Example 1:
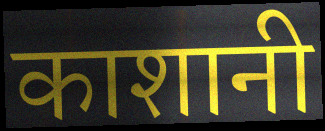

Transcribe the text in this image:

काशानी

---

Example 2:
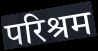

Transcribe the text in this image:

परिश्रम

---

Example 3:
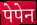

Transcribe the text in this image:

पेपेन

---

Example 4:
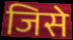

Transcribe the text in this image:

जिसे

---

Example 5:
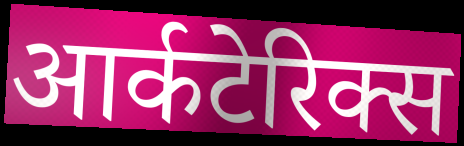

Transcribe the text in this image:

आर्कटेरिक्स